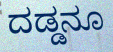
ದಡ್ಡನೂ